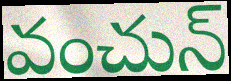
వంచున్